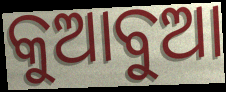
କୁଆବୁଆ